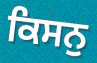
ਕਿਸਨੁ